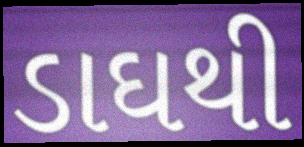
ડાઘથી